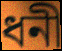
ধনী